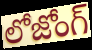
లోజోంగ్